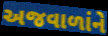
અજવાળાંને